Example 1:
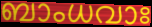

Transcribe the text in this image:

ബാംധവാഃ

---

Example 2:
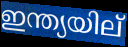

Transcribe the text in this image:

ഇന്ത്യയില്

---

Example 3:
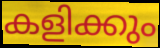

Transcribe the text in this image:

കളിക്കും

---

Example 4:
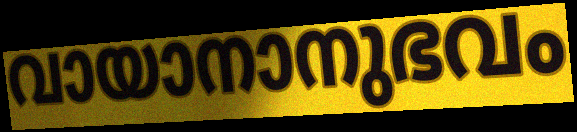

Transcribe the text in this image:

വായാനാനുഭവം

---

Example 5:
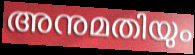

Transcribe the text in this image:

അനുമതിയും